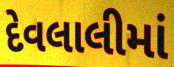
દેવલાલીમાં